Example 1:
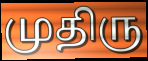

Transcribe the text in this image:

முதிரு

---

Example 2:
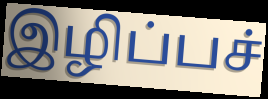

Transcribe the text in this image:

இழிப்பச்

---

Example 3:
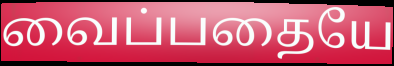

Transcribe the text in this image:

வைப்பதையே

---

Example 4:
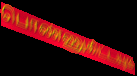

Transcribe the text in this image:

பொண்ணுகிட்டயும்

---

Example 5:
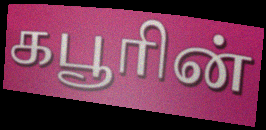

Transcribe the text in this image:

கபூரின்